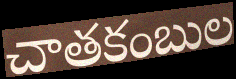
చాతకంబుల